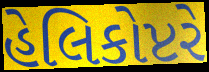
હેલિકોપ્ટરે